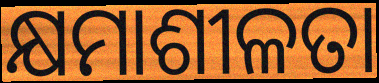
କ୍ଷମାଶୀଳତା